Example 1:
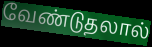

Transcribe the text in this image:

வேண்டுதலால்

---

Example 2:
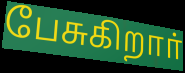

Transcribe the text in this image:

பேசுகிறார்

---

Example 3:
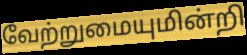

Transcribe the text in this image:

வேற்றுமையுமின்றி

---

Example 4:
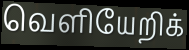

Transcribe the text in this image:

வெளியேறிக்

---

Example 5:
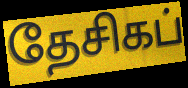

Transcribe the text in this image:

தேசிகப்